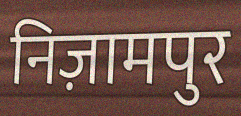
निज़ामपुर